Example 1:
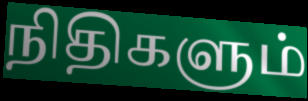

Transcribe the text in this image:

நிதிகளும்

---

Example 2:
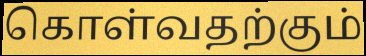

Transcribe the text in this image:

கொள்வதற்கும்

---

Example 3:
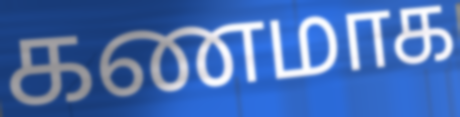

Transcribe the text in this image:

கணமாக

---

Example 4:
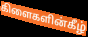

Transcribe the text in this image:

கிளைகளின்கீழ்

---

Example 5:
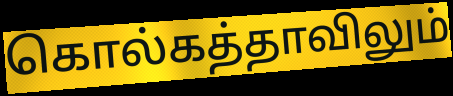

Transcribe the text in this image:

கொல்கத்தாவிலும்